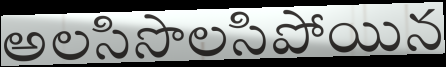
అలసిసొలసిపోయిన